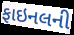
ફાઇનલની